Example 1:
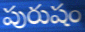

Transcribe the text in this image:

పురుషం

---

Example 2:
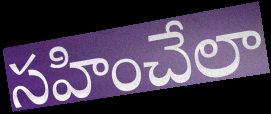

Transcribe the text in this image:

సహించేలా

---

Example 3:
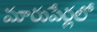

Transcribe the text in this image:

మారుపేర్లలో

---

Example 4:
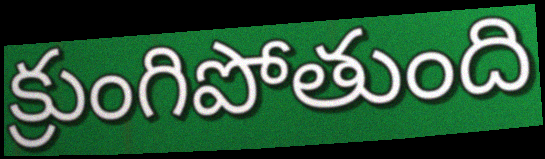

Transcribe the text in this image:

క్రుంగిపోతుంది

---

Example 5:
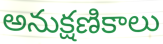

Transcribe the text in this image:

అనుక్షణికాలు